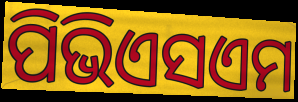
ପିଭିଏସଏମ